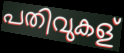
പതിവുകള്